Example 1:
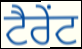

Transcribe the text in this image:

ਟੈਰੇਂਟ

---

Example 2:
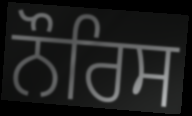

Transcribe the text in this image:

ਨੌਰਿਸ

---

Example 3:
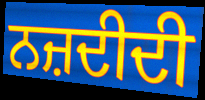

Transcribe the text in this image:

ਨਜ਼ਦੀਦੀ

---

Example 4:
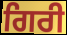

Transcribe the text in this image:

ਗਿਰੀ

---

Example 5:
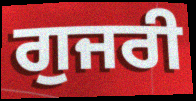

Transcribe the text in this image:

ਗੁਜਰੀ